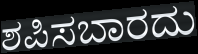
ಶಪಿಸಬಾರದು